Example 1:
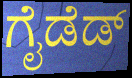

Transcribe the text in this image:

ಗೈಡೆಡ್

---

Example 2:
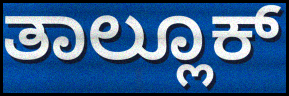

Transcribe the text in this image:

ತಾಲ್ಲೂಕ್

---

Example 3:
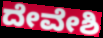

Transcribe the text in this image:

ದೇವೇಶಿ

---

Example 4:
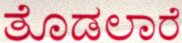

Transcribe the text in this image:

ತೊಡಲಾರೆ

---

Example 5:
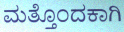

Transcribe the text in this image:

ಮತ್ತೊಂದಕಾಗಿ